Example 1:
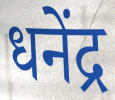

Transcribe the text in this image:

धनेंद्र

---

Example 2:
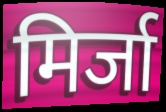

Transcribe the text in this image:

मिर्जा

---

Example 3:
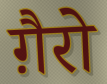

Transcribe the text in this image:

ग़ैरो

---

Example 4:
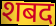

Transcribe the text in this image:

शबद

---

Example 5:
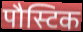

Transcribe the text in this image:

पौस्टिक